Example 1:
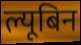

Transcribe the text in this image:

ल्यूबिन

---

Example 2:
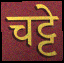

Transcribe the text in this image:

चट्टे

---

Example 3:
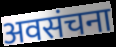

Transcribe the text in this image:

अवसंचना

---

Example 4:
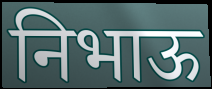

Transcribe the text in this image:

निभाऊ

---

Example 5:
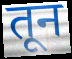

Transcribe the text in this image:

तून